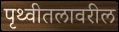
पृथ्वीतलावरील